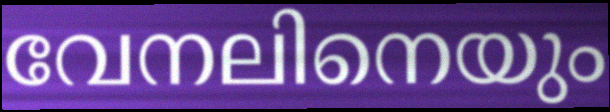
വേനലിനെയും